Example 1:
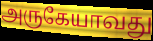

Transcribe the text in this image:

அருகேயாவது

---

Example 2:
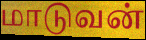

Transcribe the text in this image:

மாடுவன்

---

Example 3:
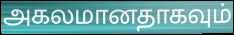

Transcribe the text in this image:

அகலமானதாகவும்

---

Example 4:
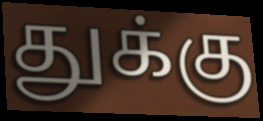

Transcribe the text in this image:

துக்கு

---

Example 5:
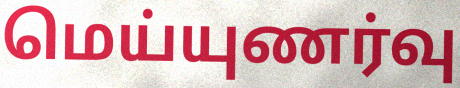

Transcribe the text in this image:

மெய்யுணர்வு